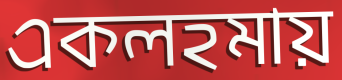
একলহমায়